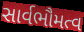
સાર્વભૌમત્વ